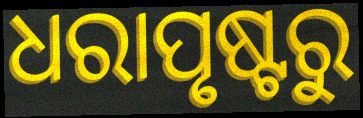
ଧରାପୃଷ୍ଟରୁ